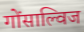
गोंसाल्विज